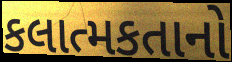
કલાત્મકતાનો